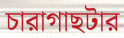
চারাগাছটার